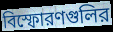
বিস্ফোরণগুলির